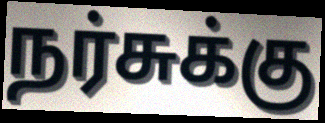
நர்சுக்கு